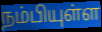
நம்பியுள்ள